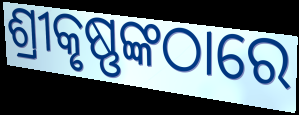
ଶ୍ରୀକୃଷ୍ଣଙ୍କଠାରେ